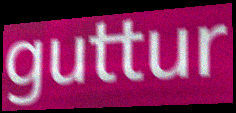
guttur